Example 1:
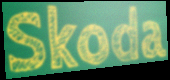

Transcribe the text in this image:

Skoda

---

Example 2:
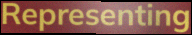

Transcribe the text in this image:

Representing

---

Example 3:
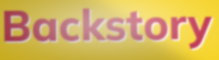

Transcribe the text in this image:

Backstory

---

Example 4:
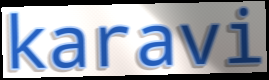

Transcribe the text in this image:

karavi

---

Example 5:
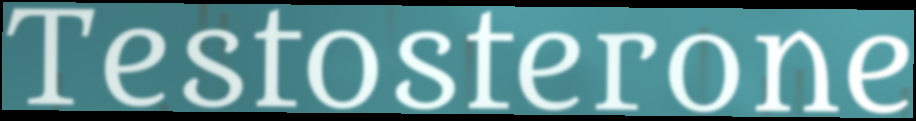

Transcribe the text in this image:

Testosterone